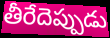
తీరేదెప్పుడు